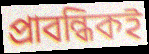
প্রাবন্ধিকই